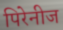
पिरेनीज